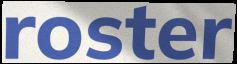
roster